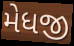
મેધજી